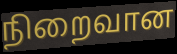
நிறைவான